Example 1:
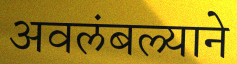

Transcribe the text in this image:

अवलंबल्याने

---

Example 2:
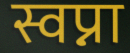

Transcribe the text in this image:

स्वप्ना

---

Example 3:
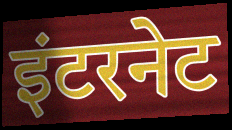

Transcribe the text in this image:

इंटरनेट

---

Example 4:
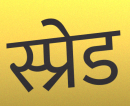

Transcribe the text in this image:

स्प्रेड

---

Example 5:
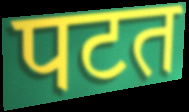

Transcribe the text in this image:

पटत